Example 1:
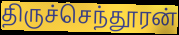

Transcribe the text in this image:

திருச்செந்தூரன்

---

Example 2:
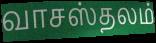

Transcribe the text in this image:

வாசஸ்தலம்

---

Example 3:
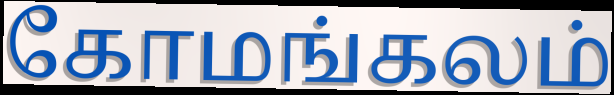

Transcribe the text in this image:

கோமங்கலம்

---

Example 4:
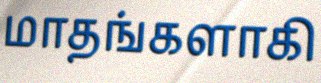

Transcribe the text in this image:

மாதங்களாகி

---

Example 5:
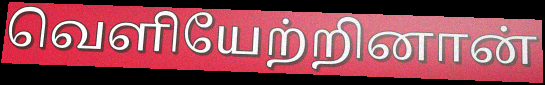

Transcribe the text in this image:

வெளியேற்றினான்